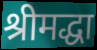
श्रीमद्धा